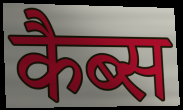
कैब्स